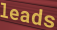
leads